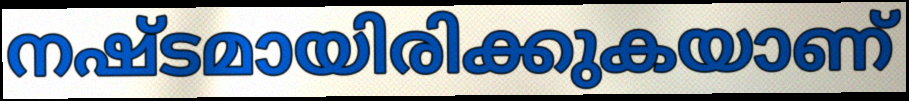
നഷ്ടമായിരിക്കുകയാണ്